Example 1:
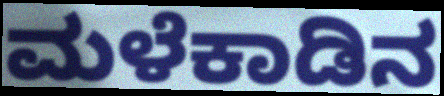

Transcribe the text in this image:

ಮಳೆಕಾಡಿನ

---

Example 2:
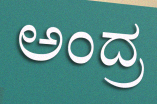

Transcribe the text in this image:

ಅಂದ್ರ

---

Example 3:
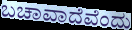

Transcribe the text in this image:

ಬಚಾವಾದೆವೆಂದು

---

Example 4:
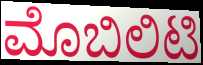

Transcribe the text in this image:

ಮೊಬಿಲಿಟಿ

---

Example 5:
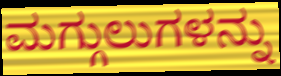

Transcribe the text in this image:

ಮಗ್ಗುಲುಗಳನ್ನು